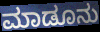
ಮಾಡೂನು